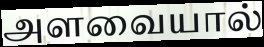
அளவையால்